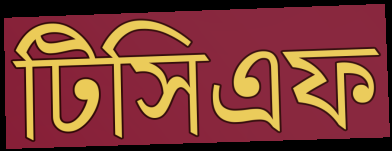
টিসিএফ